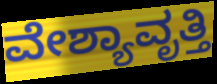
ವೇಶ್ಯಾವೃತ್ತಿ